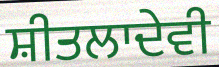
ਸ਼ੀਤਲਾਦੇਵੀ